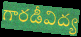
గారడీవిద్య